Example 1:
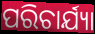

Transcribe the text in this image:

ପରିଚାର୍ଯ୍ୟା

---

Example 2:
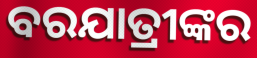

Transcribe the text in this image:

ବରଯାତ୍ରୀଙ୍କର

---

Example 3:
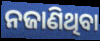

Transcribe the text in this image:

ନଜାଣିଥିବା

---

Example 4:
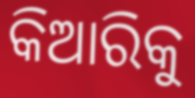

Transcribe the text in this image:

କିଆରିକୁ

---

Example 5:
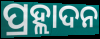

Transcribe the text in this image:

ପ୍ରହ୍ଲାଦନ